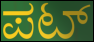
ಪಟ್